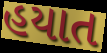
હયાત